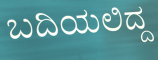
ಬದಿಯಲಿದ್ದ